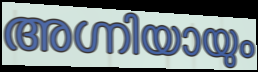
അഗ്നിയായും